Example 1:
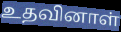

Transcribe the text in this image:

உதவினாள்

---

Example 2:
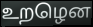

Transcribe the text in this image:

உறழென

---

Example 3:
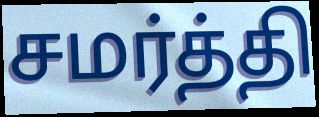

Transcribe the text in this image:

சமர்த்தி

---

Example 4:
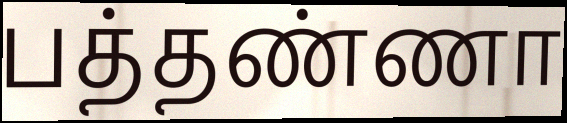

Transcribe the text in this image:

பத்தண்ணா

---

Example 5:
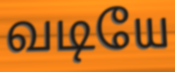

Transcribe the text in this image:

வடியே